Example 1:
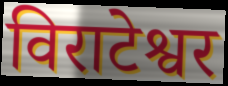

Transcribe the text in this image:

विराटेश्वर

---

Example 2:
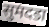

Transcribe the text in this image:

सुमंदडा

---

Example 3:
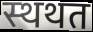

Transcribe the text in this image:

स्थथत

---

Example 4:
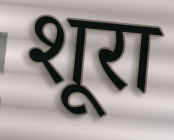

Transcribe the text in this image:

शूरा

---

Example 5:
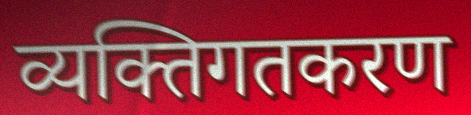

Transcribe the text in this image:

व्यक्तिगतकरण